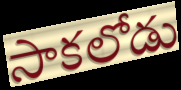
సాకలోడు